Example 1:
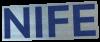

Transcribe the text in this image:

NIFE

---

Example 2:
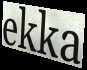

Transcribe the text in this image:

ekka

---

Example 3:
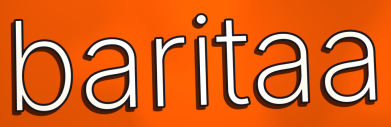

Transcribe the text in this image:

baritaa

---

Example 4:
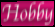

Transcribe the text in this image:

Hobby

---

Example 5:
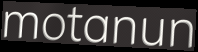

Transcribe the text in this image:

motanun